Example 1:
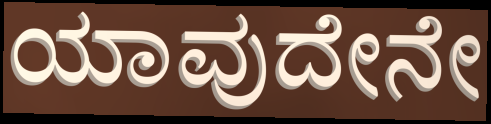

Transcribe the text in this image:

ಯಾವುದೇನೇ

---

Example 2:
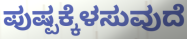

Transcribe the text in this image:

ಪುಷ್ಪಕ್ಕೆಳಸುವುದೆ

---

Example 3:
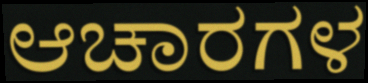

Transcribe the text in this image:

ಆಚಾರಗಳ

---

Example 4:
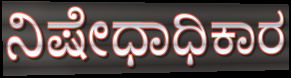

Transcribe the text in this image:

ನಿಷೇಧಾಧಿಕಾರ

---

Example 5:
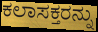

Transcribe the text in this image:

ಕಲಾಸಕ್ತರನ್ನು